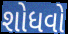
શોધવો